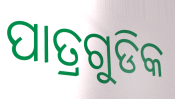
ପାତ୍ରଗୁଡିକ